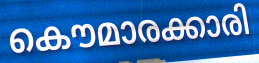
കൌമാരക്കാരി